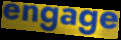
engage